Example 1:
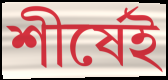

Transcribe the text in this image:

শীর্ষেই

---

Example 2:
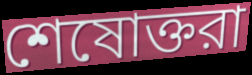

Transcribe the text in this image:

শেষোক্তরা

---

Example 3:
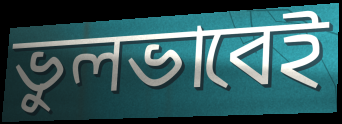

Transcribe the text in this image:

ভুলভাবেই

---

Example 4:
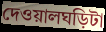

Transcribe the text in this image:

দেওয়ালঘড়িটা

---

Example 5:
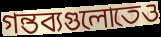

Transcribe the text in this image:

গন্তব্যগুলোতেও